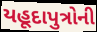
યહૂદાપુત્રોની